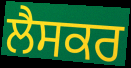
ਲੈਸਕਰ